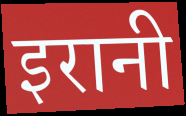
इरानी